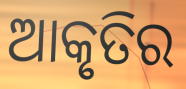
ଆକୃତିର